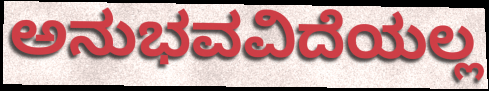
ಅನುಭವವಿದೆಯಲ್ಲ